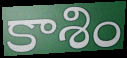
కాశిం